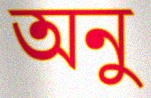
অনু